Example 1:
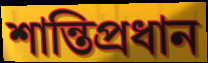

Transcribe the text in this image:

শান্তিপ্রধান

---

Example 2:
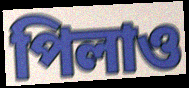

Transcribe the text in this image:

পিলাও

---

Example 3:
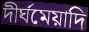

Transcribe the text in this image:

দীর্ঘমেয়াদি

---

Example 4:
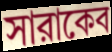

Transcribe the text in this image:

সারাকেব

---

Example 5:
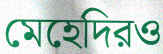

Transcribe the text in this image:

মেহেদিরও